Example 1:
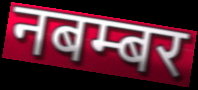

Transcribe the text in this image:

नबम्बर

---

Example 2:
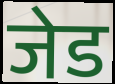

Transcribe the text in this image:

जेड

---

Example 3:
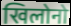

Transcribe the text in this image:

खिलोनो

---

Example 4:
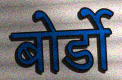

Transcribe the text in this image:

बोर्डो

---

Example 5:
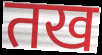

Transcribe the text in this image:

तख